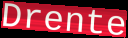
Drente